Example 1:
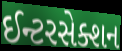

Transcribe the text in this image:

ઈન્ટરસેક્શન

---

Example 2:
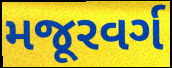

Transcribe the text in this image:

મજૂરવર્ગ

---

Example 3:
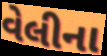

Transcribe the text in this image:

વેલીના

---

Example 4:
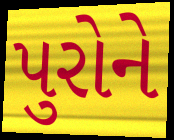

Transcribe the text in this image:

પુરોને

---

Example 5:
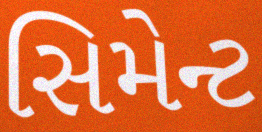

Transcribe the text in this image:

સિમેન્ટ